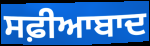
ਸਫ਼ੀਆਬਾਦ